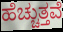
ಹೆಚ್ಚುತ್ತವೆ